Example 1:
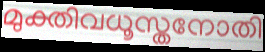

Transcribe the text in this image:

മുക്തിവധൂസ്തനോതി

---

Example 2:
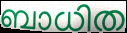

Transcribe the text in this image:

ബാധിത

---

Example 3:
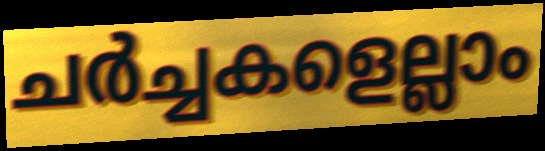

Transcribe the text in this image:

ചർച്ചകളെല്ലാം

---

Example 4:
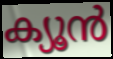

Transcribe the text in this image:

ക്യൂൻ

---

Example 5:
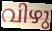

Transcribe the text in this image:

വിഴു